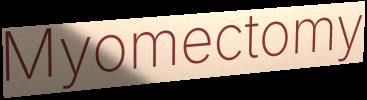
Myomectomy